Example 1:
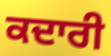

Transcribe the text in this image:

ਕਦਾਰੀ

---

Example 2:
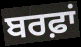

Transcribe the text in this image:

ਬਰਫ਼ਾਂ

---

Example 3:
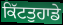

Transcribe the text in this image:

ਕਿੱਟਤੁਹਾਡੇ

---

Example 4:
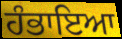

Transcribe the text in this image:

ਹੰਭਾਇਆ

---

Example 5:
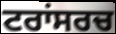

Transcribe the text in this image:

ਟਰਾਂਸਰਚ